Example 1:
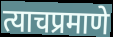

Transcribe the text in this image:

त्याचप्रमाणे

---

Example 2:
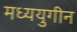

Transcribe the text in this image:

मध्ययुगीन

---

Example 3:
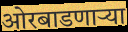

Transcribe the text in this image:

ओरबाडणाऱ्या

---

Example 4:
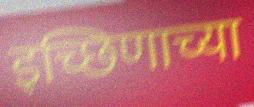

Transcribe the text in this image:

इच्छिणाच्या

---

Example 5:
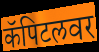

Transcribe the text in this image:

कॅपिटलवर